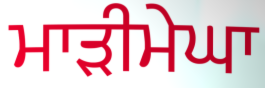
ਮਾੜੀਮੇਘਾ